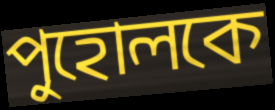
পুহোলকে